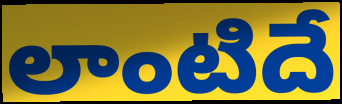
లాంటిదే